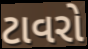
ટાવરો